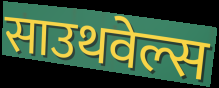
साउथवेल्स